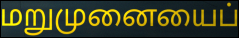
மறுமுனையைப்